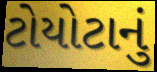
ટોયોટાનું